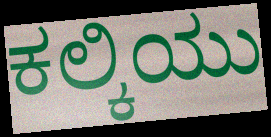
ಕಲ್ಕಿಯು